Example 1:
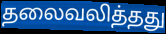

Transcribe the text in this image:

தலைவலித்தது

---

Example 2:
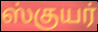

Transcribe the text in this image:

ஸ்குயர்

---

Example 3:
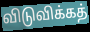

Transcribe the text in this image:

விடுவிக்கத்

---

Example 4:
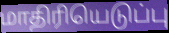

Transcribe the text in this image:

மாதிரியெடுப்பு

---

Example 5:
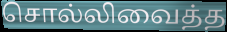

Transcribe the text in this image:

சொல்லிவைத்த